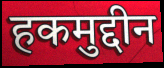
हकमुद्दीन